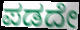
ಪಡದೇ